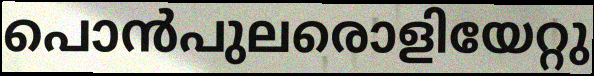
പൊൻപുലരൊളിയേറ്റു